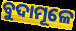
ବୁଦାମୂଳେ